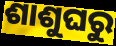
ଶାଶୁଘରୁ